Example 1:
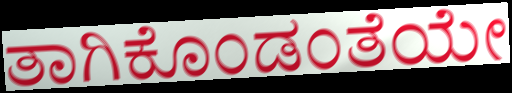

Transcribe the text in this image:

ತಾಗಿಕೊಂಡಂತೆಯೇ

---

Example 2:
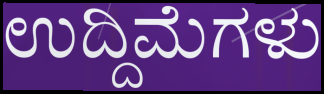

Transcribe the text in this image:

ಉದ್ದಿಮೆಗಳು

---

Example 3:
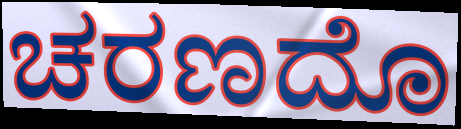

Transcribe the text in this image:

ಚರಣದೊ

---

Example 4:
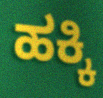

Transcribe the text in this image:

ಹಕ್ಕಿ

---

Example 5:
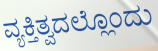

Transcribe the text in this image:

ವ್ಯಕ್ತಿತ್ವದಲ್ಲೊಂದು